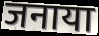
जनाया